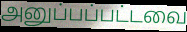
அனுப்பப்பட்டவை